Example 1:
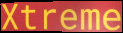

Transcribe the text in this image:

Xtreme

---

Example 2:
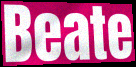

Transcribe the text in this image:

Beate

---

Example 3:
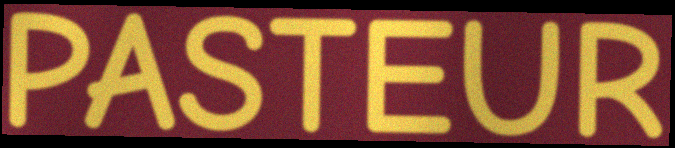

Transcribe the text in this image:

PASTEUR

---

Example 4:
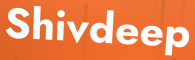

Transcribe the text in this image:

Shivdeep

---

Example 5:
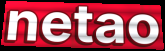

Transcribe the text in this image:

netao